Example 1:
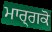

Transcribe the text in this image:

ਮਾਰ੍ਗਕੋ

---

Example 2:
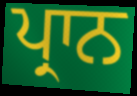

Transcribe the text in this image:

ਪ੍ਰਾਨ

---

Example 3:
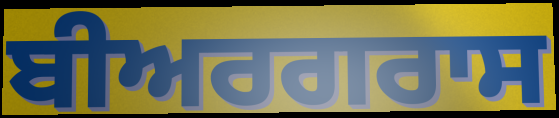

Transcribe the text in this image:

ਬੀਅਰਗਰਾਸ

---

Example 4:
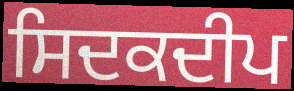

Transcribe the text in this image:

ਸਿਦਕਦੀਪ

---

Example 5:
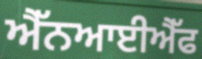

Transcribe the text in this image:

ਐੱਨਆਈਐੱਫ